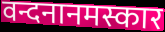
वन्दनानमस्कार